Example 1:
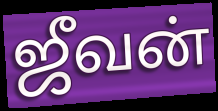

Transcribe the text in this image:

ஜீவன்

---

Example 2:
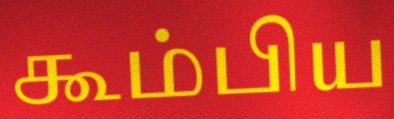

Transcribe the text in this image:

கூம்பிய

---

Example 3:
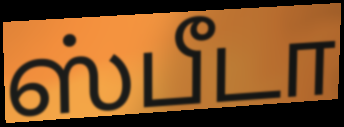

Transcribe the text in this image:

ஸ்பீடா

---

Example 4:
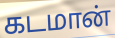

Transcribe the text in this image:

கடமான்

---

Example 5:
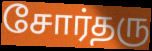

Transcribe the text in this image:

சோர்தரு